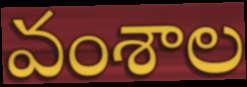
వంశాల